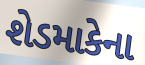
શેડમાકેના